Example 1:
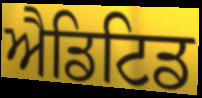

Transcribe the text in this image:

ਐਡਿਟਿਡ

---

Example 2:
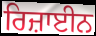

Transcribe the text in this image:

ਰਿਜ਼ਾਈਨ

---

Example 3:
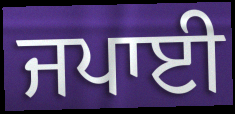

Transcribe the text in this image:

ਜਪਾਈ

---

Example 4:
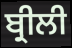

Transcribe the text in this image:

ਬ੍ਰੀਲੀ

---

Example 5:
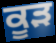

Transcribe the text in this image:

ਕੂੜ